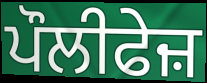
ਪੌਲੀਫੇਜ਼